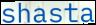
shasta